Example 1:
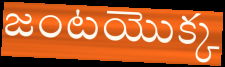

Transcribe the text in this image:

జంటయొక్క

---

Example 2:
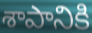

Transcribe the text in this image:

శాపానికి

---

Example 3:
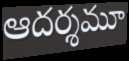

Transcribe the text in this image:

ఆదర్శమూ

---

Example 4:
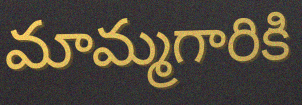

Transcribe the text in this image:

మామ్మగారికి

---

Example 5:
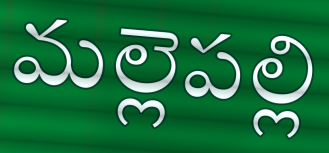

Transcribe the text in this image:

మల్లెపల్లి